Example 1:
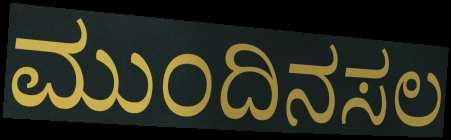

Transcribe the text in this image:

ಮುಂದಿನಸಲ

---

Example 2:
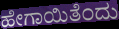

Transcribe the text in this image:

ಹೇಗಾಯಿತೆಂದು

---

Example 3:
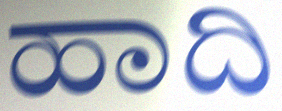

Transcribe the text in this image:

ಹಾದಿ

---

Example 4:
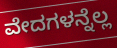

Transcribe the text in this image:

ವೇದಗಳನ್ನೆಲ್ಲ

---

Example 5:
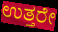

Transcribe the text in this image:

ಉತ್ತರೇ